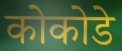
कोकोडे